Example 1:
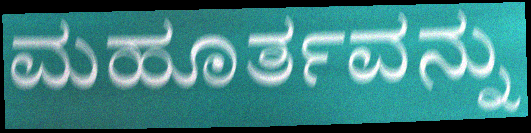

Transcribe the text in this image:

ಮಹೂರ್ತವನ್ನು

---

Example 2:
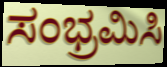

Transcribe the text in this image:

ಸಂಭ್ರಮಿಸಿ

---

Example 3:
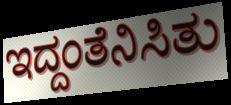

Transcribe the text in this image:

ಇದ್ದಂತೆನಿಸಿತು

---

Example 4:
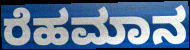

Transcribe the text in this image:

ರೆಹಮಾನ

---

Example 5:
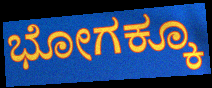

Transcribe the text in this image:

ಭೋಗಕ್ಕೂ